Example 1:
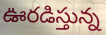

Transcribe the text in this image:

ఊరడిస్తున్న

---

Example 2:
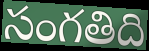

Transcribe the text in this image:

సంగతిది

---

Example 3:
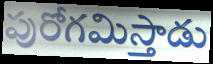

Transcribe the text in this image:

పురోగమిస్తాడు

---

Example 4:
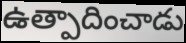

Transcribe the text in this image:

ఉత్పాదించాడు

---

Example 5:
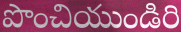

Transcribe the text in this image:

పొంచియుండిరి